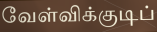
வேள்விக்குடிப்